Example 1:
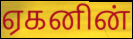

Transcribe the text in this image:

ஏகனின்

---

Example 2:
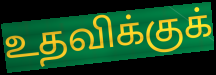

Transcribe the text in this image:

உதவிக்குக்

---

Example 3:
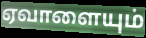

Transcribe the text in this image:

ஏவாளையும்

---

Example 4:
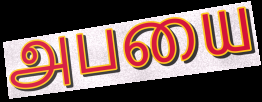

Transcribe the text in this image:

அபயை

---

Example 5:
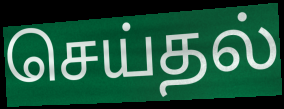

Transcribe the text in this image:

செய்தல்